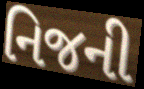
નિજની